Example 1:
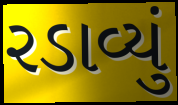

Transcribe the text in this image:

રડાવ્યું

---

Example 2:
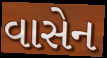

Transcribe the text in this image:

વાસેન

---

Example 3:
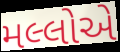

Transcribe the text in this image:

મલ્લોએ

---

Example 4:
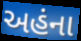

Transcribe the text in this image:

અહંના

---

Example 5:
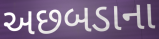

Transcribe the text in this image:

અછબડાના